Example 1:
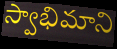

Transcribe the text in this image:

స్వాభిమాని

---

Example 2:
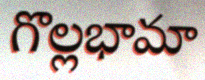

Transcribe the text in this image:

గొల్లభామా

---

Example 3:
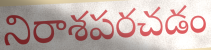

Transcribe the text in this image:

నిరాశపరచడం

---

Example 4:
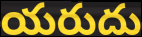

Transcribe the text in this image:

యరుదు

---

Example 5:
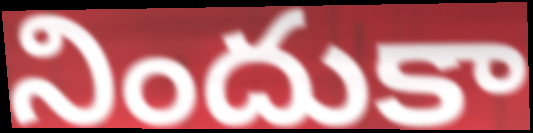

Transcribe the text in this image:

నిందుకా